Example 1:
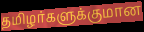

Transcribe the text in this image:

தமிழர்களுக்குமான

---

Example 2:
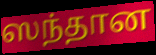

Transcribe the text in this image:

ஸந்தான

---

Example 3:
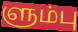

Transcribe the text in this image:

ளும்பு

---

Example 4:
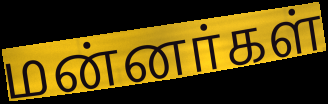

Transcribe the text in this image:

மன்னர்கள்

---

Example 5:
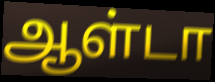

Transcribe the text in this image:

ஆள்டா